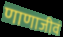
णाणाजीवं